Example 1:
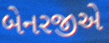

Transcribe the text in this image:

બેનરજીએ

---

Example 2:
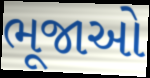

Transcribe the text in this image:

ભૂજાઓ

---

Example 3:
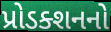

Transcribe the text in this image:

પ્રોડક્શનનો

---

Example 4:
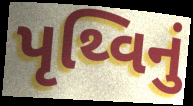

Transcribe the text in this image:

પૃથ્વિનું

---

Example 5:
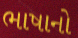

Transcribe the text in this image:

ભાષાનો